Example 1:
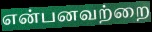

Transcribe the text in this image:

என்பனவற்றை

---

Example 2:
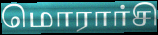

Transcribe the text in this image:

மொரார்சி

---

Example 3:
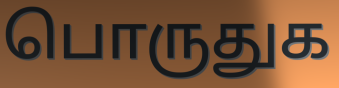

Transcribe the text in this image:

பொருதுக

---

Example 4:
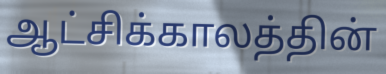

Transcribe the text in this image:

ஆட்சிக்காலத்தின்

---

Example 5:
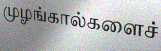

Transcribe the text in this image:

முழங்கால்களைச்